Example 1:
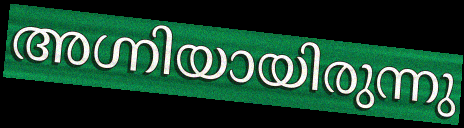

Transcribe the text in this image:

അഗ്നിയായിരുന്നു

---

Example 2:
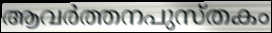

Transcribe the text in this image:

ആവർത്തനപുസ്തകം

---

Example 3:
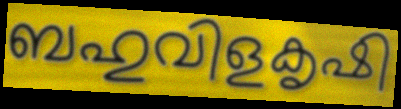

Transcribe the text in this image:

ബഹുവിളകൃഷി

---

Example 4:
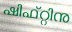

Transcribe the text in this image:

ഷിഫ്റ്റിനു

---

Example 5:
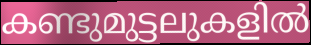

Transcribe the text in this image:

കണ്ടുമുട്ടലുകളിൽ